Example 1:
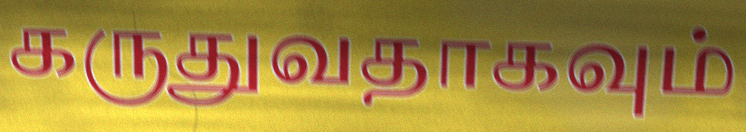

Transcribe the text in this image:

கருதுவதாகவும்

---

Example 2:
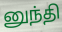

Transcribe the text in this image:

னுந்தி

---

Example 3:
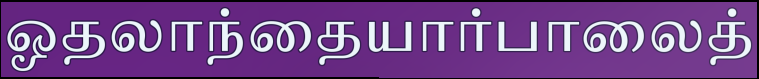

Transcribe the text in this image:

ஓதலாந்தையார்பாலைத்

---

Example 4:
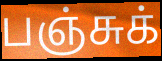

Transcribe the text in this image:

பஞ்சுக்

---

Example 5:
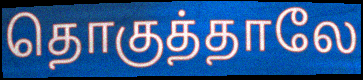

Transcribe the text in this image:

தொகுத்தாலே